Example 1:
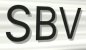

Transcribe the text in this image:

SBV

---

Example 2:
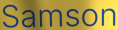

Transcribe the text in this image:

Samson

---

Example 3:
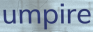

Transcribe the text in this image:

umpire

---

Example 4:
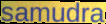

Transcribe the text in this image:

samudra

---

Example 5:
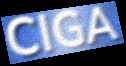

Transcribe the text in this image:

CIGA